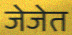
जेजेत